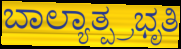
ಬಾಲ್ಯಾತ್ಪ್ರಭೃತಿ